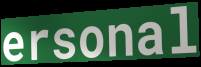
ersonal